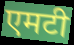
एमटी